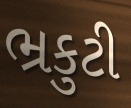
ભ્રકુટી